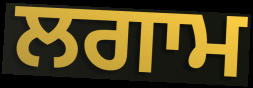
ਲਗਾਮ